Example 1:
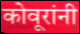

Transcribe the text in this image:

कोवूरांनी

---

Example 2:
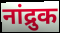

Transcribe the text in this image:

नांद्रुक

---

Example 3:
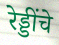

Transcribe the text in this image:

रेड्डींचे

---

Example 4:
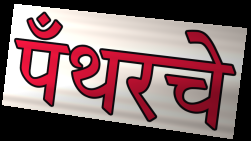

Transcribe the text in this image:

पँथरचे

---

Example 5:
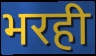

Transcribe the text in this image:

भरही